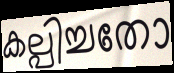
കല്പിച്ചതോ